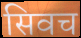
सिवच